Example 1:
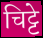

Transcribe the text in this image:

चिट्टे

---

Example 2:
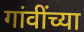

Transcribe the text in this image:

गांवींच्या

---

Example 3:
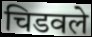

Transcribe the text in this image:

चिडवले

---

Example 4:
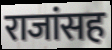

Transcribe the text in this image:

राजांसह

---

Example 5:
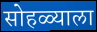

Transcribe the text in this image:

सोहळ्याला